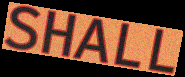
SHALL